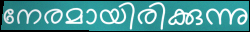
നേരമായിരിക്കുന്നു